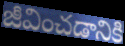
జీవించడానికి